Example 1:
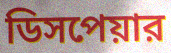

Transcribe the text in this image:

ডিসপেয়ার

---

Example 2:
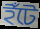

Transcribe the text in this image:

ইঁটে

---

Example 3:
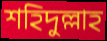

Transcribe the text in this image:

শহিদুল্লাহ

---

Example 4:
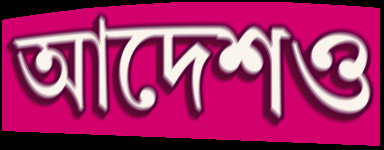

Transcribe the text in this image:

আদেশও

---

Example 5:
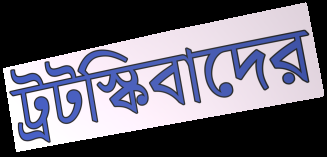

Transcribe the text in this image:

ট্রটস্কিবাদের